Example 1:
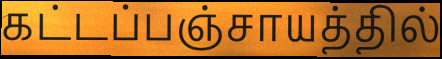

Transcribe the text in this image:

கட்டப்பஞ்சாயத்தில்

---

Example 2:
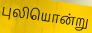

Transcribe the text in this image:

புலியொன்று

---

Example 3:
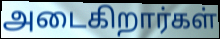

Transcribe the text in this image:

அடைகிறார்கள்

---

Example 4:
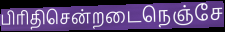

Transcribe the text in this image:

பிரிதிசென்றடைநெஞ்சே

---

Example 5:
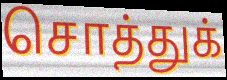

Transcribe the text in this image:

சொத்துக்